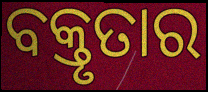
ବକ୍ତୃତାର